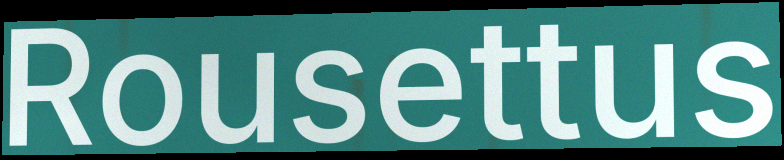
Rousettus